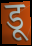
डू